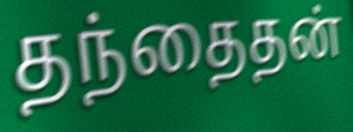
தந்தைதன்